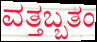
ವತ್ತಬ್ಬತಂ